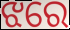
ଝରେ